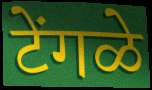
टेंगळे